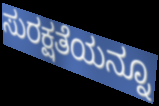
ಸುರಕ್ಷತೆಯನ್ನೂ